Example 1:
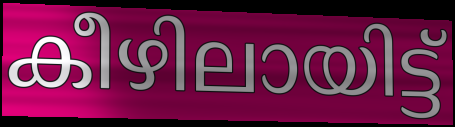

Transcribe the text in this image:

കീഴിലായിട്ട്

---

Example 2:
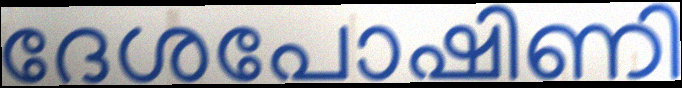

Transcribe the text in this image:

ദേശപോഷിണി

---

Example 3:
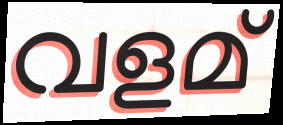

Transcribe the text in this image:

വളമ്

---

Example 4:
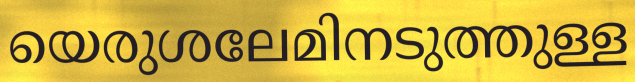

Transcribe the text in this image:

യെരുശലേമിനടുത്തുള്ള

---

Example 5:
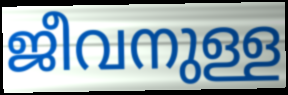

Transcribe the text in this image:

ജീവനുള്ള